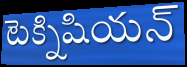
టెక్నిషియన్